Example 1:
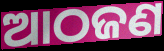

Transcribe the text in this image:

ଆଠଜଣ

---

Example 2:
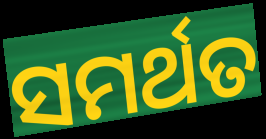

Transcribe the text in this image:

ସମର୍ଥତ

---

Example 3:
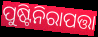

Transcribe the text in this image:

ପୁଷ୍ଟିନିରାପତ୍ତା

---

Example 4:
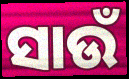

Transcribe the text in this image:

ସାଉଁ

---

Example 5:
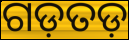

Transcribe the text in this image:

ଗଡ଼ତଡ଼